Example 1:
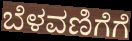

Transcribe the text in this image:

ಬೆಳವಣಿಗೆಗೆ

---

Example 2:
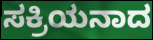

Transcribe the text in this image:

ಸಕ್ರಿಯನಾದ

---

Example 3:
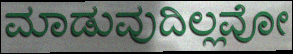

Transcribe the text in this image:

ಮಾಡುವುದಿಲ್ಲವೋ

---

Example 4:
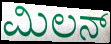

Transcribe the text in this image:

ಮಿಲನ್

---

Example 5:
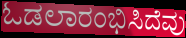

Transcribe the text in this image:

ಓಡಲಾರಂಭಿಸಿದೆವು